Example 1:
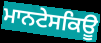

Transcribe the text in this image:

ਮਾਨਟੇਸਕਿਊ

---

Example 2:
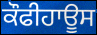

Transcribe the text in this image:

ਕੌਫੀਹਾਊਸ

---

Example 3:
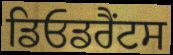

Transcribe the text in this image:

ਡਿਓਡਰੈਂਟਸ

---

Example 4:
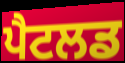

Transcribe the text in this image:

ਪੈਟਲਡ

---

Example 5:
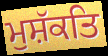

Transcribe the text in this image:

ਮੁਸ਼ੱਕਤਿ